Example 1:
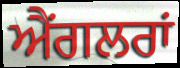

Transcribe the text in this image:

ਐਂਗਲਰਾਂ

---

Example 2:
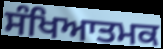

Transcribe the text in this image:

ਸੰਖਿਆਤਮਕ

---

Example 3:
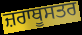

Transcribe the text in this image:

ਜ਼ਰਾਥੂਸਤਰ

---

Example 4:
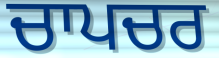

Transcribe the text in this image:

ਚਾਪਚਰ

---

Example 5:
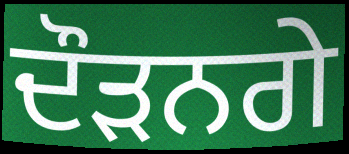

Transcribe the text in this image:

ਦੌੜਨਗੇ